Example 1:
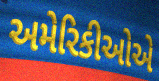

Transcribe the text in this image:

અમેરિકીઓએ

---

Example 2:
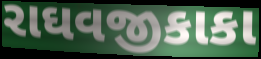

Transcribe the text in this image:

રાઘવજીકાકા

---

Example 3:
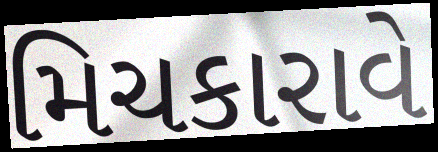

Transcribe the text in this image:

મિચકારાવે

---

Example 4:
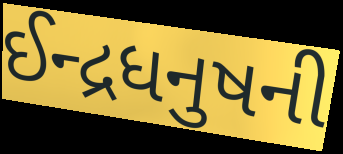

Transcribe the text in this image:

ઈન્દ્રધનુષની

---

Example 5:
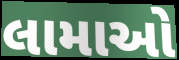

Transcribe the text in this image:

લામાઓ